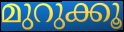
മുറുക്കൂ